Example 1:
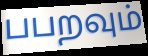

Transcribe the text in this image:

பபறவும்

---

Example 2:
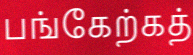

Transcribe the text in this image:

பங்கேற்கத்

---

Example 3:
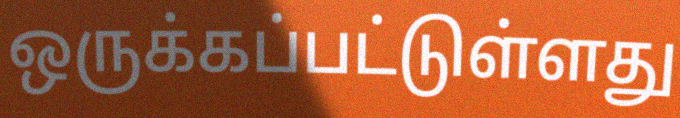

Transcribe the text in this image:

ஒருக்கப்பட்டுள்ளது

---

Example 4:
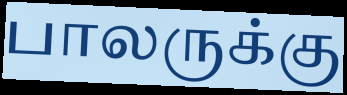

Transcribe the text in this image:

பாலருக்கு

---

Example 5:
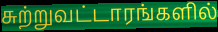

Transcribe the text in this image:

சுற்றுவட்டாரங்களில்